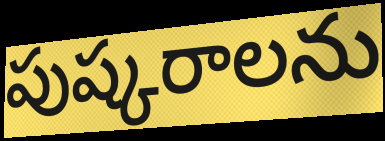
పుష్కరాలను